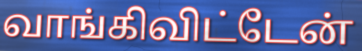
வாங்கிவிட்டேன்